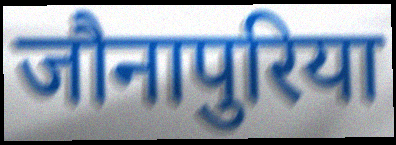
जौनापुरिया